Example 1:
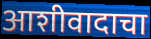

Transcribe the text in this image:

आशीवादाचा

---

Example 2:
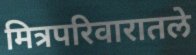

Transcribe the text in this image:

मित्रपरिवारातले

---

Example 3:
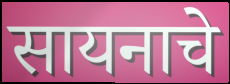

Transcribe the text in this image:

सायनाचे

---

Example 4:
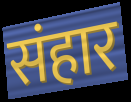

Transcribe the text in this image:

संहार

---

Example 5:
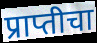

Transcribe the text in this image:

प्राप्तीचा